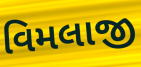
વિમલાજી